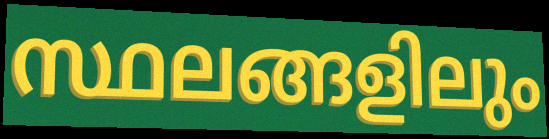
സ്ഥലങ്ങളിലും